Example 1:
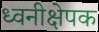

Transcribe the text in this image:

ध्वनीक्षेपक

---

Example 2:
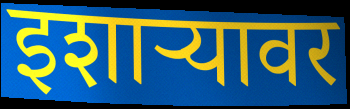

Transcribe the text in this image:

इशाऱ्यावर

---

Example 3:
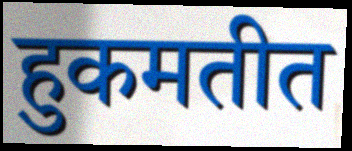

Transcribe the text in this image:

हुकमतीत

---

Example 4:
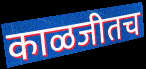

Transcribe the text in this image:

काळजीतच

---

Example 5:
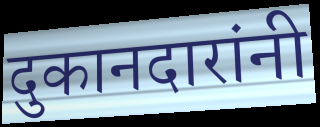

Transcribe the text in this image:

दुकानदारांनी